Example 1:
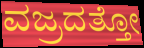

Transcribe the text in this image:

ವಜ್ರದತ್ತೋ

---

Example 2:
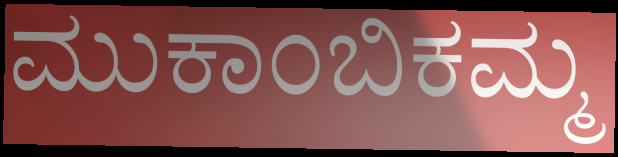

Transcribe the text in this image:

ಮುಕಾಂಬಿಕಮ್ಮ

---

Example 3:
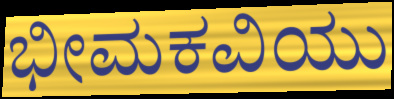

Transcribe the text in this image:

ಭೀಮಕವಿಯು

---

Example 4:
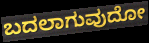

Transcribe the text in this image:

ಬದಲಾಗುವುದೋ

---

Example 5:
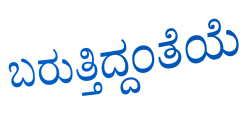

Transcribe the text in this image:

ಬರುತ್ತಿದ್ದಂತೆಯೆ